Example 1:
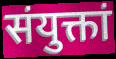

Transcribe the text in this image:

संयुक्तां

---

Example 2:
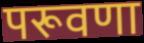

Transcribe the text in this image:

परूवणा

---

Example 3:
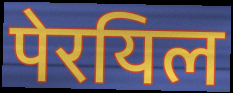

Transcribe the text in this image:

पेरयिल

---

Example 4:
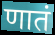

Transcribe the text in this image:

णातं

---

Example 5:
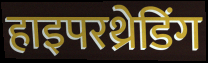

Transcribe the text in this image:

हाइपरथ्रेडिंग